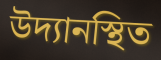
উদ্যানস্থিত